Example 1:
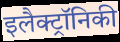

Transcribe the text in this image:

इलैक्ट्रॉनिकी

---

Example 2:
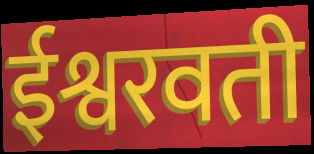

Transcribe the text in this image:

ईश्वरवती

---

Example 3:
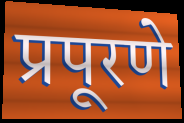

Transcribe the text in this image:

प्रपूरणे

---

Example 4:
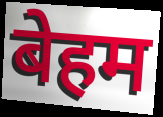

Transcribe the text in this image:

बेहम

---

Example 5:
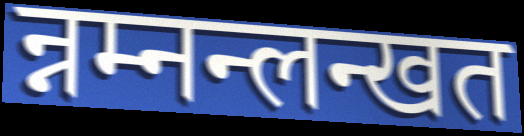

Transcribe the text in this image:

न्नम्नन्लन्खत